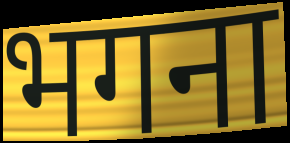
भगना